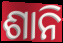
ଶାନି